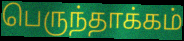
பெருந்தாக்கம்